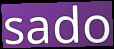
sado